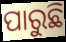
ପାରୁଛି